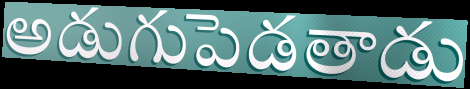
అడుగుపెడతాడు